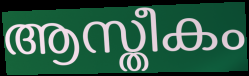
ആസ്തീകം